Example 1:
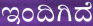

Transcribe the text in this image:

ಇಂದಿಗಿದೆ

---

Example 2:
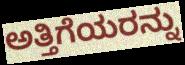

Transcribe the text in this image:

ಅತ್ತಿಗೆಯರನ್ನು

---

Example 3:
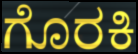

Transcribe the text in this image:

ಗೊರಕಿ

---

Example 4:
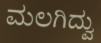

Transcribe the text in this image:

ಮಲಗಿದ್ವು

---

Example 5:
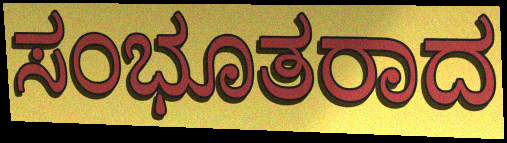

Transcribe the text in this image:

ಸಂಭೂತರಾದ